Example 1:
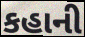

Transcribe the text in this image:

કહાની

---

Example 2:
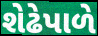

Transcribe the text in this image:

શેઢેપાળે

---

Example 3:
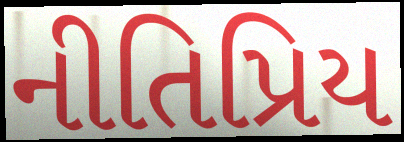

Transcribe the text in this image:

નીતિપ્રિય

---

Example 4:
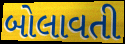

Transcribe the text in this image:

બોલાવતી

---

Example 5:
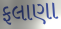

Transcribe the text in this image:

ફલાણા